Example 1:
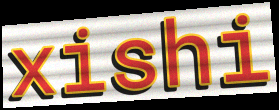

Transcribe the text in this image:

xishi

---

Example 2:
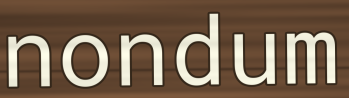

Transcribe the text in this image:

nondum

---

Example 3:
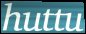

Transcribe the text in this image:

huttu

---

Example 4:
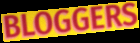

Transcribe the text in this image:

BLOGGERS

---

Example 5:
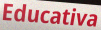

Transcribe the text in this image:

Educativa